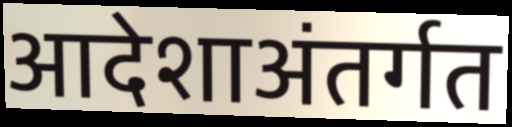
आदेशाअंतर्गत